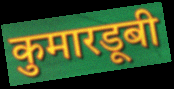
कुमारडूबी